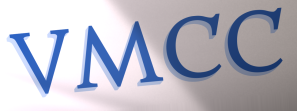
VMCC